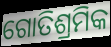
ଗୋତିଶ୍ରମିକ